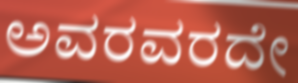
ಅವರವರದೇ